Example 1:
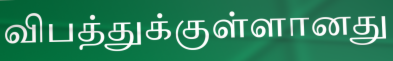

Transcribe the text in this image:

விபத்துக்குள்ளானது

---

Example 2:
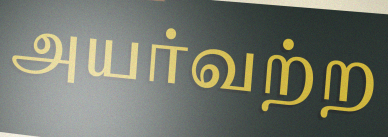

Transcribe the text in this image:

அயர்வற்ற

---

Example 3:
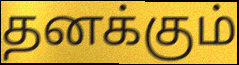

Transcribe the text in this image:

தனக்கும்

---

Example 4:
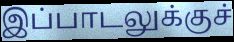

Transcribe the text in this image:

இப்பாடலுக்குச்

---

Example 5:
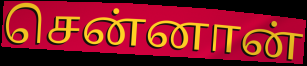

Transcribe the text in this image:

சென்னான்